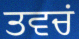
ਤਵਚਂ